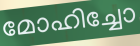
മോഹിച്ചോ